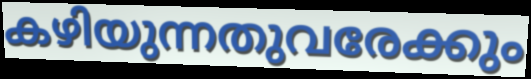
കഴിയുന്നതുവരേക്കും